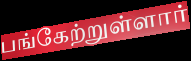
பங்கேற்றுள்ளார்